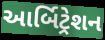
આર્બિટ્રેશન